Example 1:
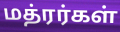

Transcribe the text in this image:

மத்ரர்கள்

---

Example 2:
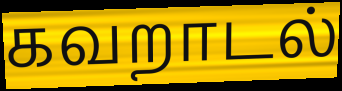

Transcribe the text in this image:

கவறாடல்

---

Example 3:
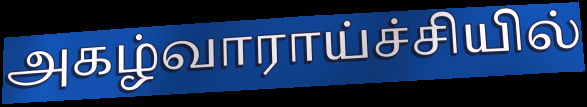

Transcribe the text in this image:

அகழ்வாராய்ச்சியில்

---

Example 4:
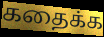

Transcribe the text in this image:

கதைக்க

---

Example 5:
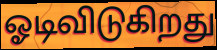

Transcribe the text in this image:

ஓடிவிடுகிறது